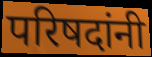
परिषदांनी